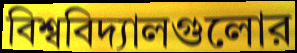
বিশ্ববিদ্যালগুলোর